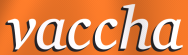
vaccha